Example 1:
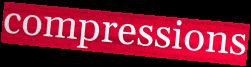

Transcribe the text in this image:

compressions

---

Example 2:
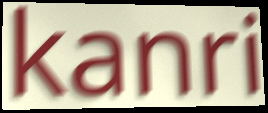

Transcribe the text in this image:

kanri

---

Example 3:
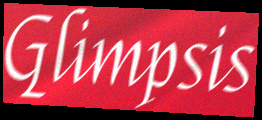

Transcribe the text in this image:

Glimpsis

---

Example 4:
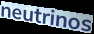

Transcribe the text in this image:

neutrinos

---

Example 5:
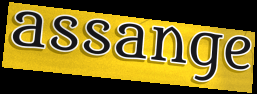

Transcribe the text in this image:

assange